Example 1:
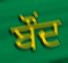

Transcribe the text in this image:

ਬੌਂਦ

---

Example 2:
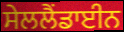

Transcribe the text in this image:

ਸੇਲਲੈਂਡਾਈਨ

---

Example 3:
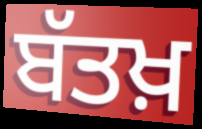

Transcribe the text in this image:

ਬੱਤਖ਼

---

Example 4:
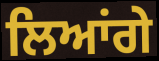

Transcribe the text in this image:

ਲਿਆਂਗੇ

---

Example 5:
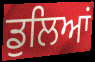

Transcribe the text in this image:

ਡੁਲਿਆਂ